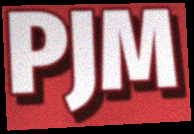
PJM